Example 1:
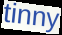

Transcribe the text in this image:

tinny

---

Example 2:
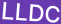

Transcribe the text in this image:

LLDC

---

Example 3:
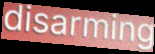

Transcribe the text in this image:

disarming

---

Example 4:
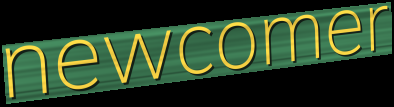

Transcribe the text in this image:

newcomer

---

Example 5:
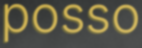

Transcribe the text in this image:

posso